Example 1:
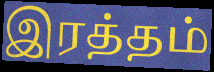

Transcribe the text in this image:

இரத்தம்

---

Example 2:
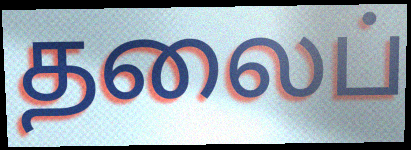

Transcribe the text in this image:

தலைப்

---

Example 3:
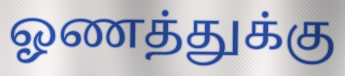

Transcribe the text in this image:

ஓணத்துக்கு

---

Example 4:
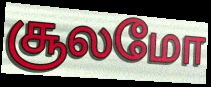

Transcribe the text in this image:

சூலமோ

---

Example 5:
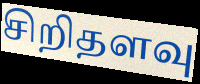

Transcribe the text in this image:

சிறிதளவு